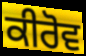
ਕੀਰੋਵ